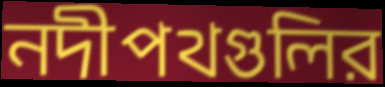
নদীপথগুলির